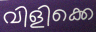
വിളിക്കെ